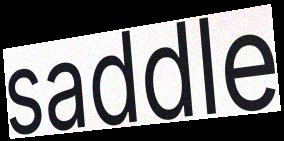
saddle